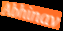
Abhinav